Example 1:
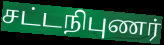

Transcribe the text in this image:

சட்டநிபுணர்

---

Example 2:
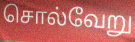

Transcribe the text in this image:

சொல்வேறு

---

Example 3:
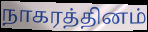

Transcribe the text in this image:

நாகரத்தினம்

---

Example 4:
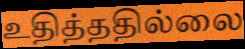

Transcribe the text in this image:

உதித்ததில்லை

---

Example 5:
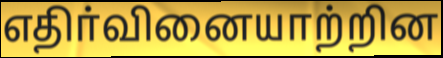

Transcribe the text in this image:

எதிர்வினையாற்றின